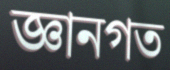
জ্ঞানগত